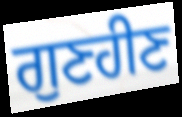
ਗੁਣਹੀਣ